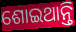
ଶୋଇଥାନ୍ତି